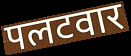
पलटवार